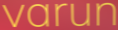
varun